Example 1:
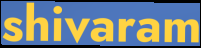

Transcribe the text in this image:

shivaram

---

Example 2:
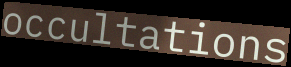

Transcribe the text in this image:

occultations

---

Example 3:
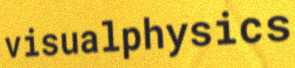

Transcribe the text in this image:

visualphysics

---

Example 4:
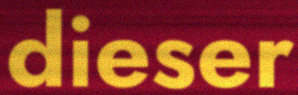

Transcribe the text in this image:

dieser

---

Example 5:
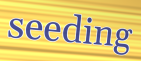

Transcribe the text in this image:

seeding